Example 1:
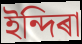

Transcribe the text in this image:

ইন্দিৰা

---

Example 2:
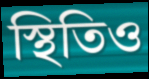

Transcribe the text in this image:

স্থিতিও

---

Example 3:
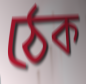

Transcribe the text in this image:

ঠেক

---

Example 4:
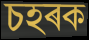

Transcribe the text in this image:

চহৰক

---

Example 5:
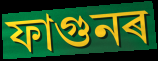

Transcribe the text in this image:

ফাগুনৰ